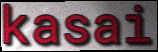
kasai